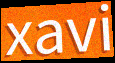
xavi